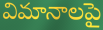
విమానాలపై